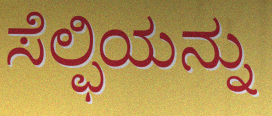
ಸೆಲ್ಫಿಯನ್ನು